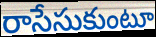
రాసేసుకుంటూ